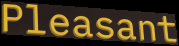
Pleasant